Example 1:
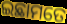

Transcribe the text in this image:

ଇଛାମତେ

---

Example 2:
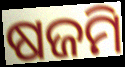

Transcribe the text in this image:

ଷଜମି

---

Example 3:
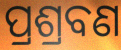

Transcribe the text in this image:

ପ୍ରଶ୍ରବଣ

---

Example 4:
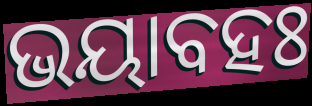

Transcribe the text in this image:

ଭୟାବହଃ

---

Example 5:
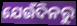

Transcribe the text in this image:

ଯେଉଁଦିନରୁ